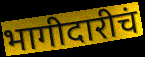
भागीदारीचं